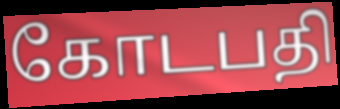
கோடபதி